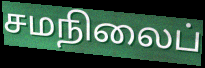
சமநிலைப்